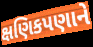
ક્ષણિકપણાને